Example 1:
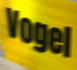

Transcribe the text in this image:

Vogel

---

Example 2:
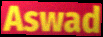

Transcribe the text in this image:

Aswad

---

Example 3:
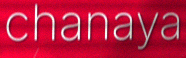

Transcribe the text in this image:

chanaya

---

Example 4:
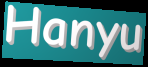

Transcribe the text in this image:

Hanyu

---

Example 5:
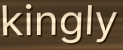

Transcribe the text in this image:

kingly